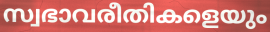
സ്വഭാവരീതികളെയും